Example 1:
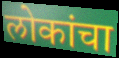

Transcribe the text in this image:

लोकांचा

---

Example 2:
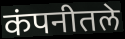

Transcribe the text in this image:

कंपनीतले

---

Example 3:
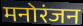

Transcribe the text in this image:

मनोरंजन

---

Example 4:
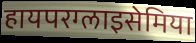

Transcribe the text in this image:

हायपरग्लाइसेमिया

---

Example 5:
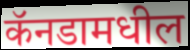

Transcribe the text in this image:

कॅनडामधील